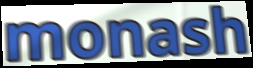
monash